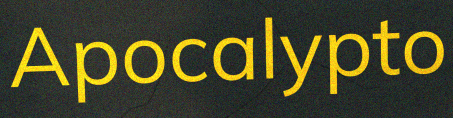
Apocalypto